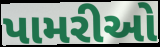
પામરીઓ